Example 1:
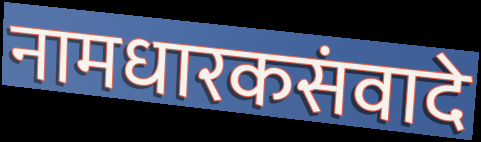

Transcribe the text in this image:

नामधारकसंवादे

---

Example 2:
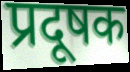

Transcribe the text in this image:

प्रदूषक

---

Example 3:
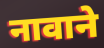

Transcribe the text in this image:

नावाने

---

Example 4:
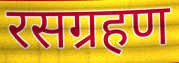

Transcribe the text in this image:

रसग्रहण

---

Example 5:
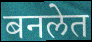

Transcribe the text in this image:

बनलेत